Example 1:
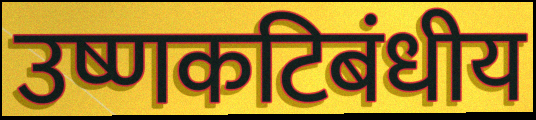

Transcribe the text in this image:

उष्णकटिबंधीय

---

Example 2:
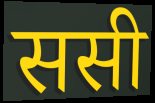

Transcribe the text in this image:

ससी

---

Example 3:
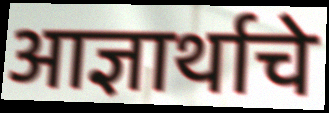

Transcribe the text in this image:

आज्ञार्थाचे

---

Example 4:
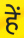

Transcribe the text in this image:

हें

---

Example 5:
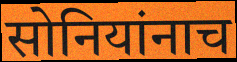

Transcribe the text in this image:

सोनियांनाच